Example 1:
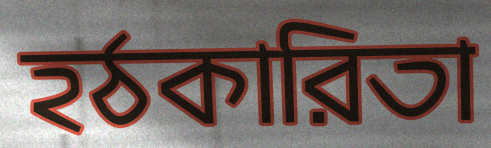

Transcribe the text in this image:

হঠকারিতা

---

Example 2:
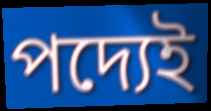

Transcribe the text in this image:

পদ্যেই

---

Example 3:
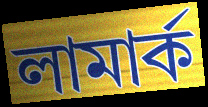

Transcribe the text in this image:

লামার্ক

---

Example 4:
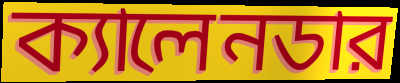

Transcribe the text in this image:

ক্যালেনডার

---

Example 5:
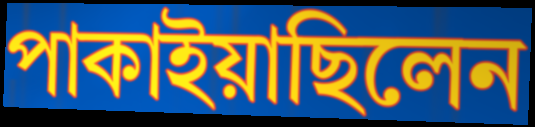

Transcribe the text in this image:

পাকাইয়াছিলেন